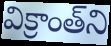
విక్రాంత్‌ని